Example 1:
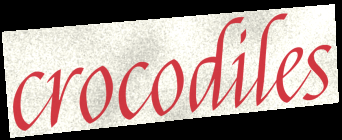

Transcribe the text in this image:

crocodiles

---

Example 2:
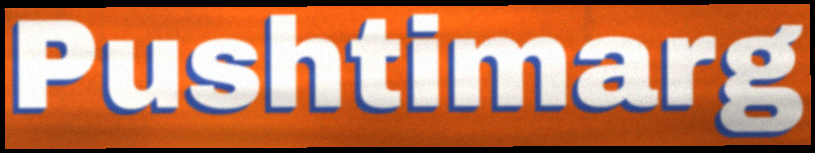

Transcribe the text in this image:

Pushtimarg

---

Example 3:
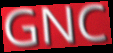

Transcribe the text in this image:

GNC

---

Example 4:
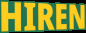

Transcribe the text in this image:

HIREN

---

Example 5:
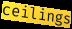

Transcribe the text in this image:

ceilings